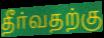
தீர்வதற்கு